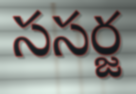
ససర్జ